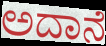
ಅದಾನೆ